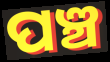
ପଞ୍ଚ